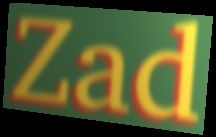
Zad